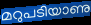
മറുപടിയാണു